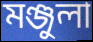
মঞ্জুলা